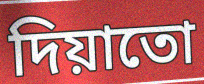
দিয়াতো